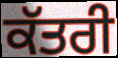
ਕੱਤਰੀ